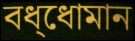
বধ্ধোমান